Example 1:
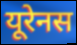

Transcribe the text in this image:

यूरेनस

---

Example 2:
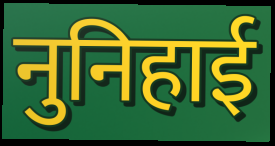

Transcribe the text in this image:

नुनिहाई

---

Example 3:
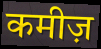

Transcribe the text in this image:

कमीज़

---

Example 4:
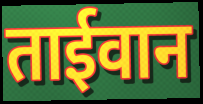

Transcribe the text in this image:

ताईवान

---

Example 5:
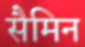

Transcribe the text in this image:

सैमिन